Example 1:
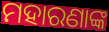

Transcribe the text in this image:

ମହାରଣାଙ୍କ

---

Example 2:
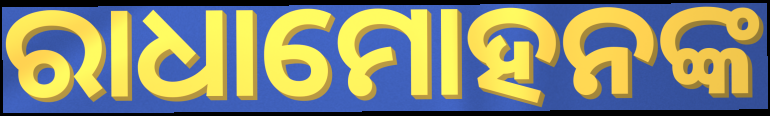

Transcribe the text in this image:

ରାଧାମୋହନଙ୍କ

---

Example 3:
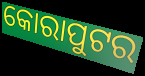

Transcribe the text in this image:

କୋରାପୁଟର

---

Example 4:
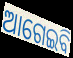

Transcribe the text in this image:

ଆଗେଇବି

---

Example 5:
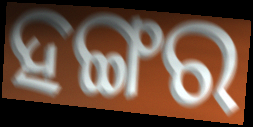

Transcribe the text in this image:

ହଙ୍ଗର